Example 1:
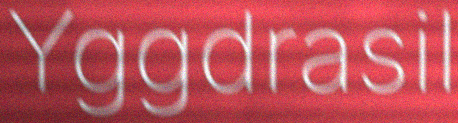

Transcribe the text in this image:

Yggdrasil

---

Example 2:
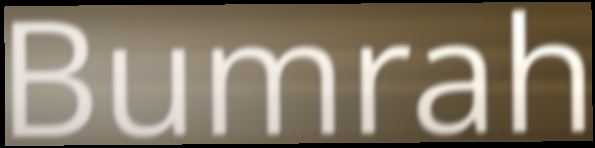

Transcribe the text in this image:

Bumrah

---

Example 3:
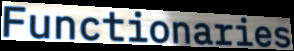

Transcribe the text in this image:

Functionaries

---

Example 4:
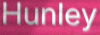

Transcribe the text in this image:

Hunley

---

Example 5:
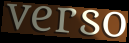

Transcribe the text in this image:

verso